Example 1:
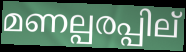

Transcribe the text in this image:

മണല്പരപ്പില്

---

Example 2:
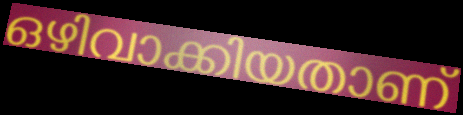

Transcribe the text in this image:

ഒഴിവാക്കിയതാണ്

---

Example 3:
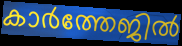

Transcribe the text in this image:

കാർത്തേജിൽ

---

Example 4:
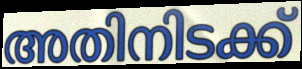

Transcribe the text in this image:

അതിനിടക്ക്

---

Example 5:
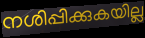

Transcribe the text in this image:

നശിപ്പിക്കുകയില്ല